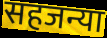
सहजन्या